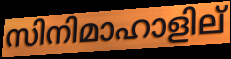
സിനിമാഹാളില്